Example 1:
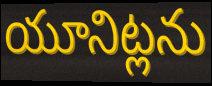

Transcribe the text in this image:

యూనిట్లను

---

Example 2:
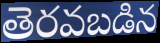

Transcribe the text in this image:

తెరవబడిన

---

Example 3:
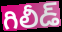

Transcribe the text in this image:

గిలీడ్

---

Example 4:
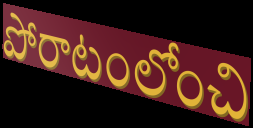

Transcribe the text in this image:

పోరాటంలోంచి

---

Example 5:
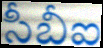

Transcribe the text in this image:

సీబీఐ